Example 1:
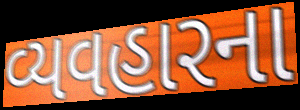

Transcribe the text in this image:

વ્યવહારના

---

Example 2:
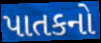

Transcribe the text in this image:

પાતકનો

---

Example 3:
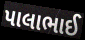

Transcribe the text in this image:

પાલાભાઈ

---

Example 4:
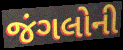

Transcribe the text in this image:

જંગલોની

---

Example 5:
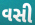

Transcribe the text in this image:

વસી